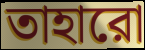
তাহারো